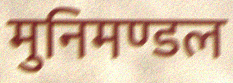
मुनिमण्डल